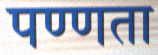
पण्णता